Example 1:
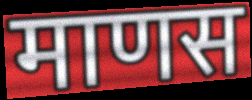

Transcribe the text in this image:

माणस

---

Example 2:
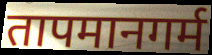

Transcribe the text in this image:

तापमानगर्म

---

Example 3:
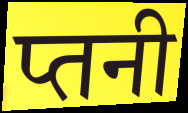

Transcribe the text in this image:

प्तनी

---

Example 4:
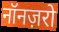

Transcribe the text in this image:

नॉनज़रो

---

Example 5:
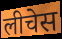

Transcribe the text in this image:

लीचेस